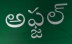
అఫ్జల్